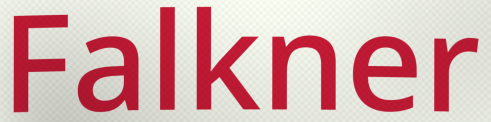
Falkner